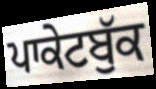
ਪਾਕੇਟਬੁੱਕ